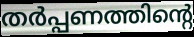
തർപ്പണത്തിന്റെ